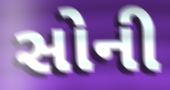
સોની